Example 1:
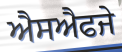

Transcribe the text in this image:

ਐਸਐਫਜੇ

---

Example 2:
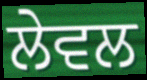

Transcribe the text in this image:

ਲੇਵਲ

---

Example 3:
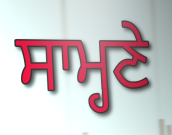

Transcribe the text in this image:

ਸਾਮ੍ਹਣੇ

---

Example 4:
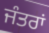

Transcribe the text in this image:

ਜੰਤਰਾਂ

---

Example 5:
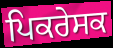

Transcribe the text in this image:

ਪਿਕਰੇਸਕ